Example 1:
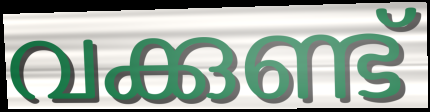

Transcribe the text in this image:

വക്കുണ്ട്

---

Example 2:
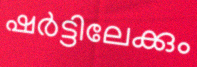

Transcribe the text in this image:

ഷർട്ടിലേക്കും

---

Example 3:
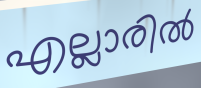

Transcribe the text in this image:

എല്ലാരിൽ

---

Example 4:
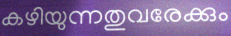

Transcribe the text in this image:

കഴിയുന്നതുവരേക്കും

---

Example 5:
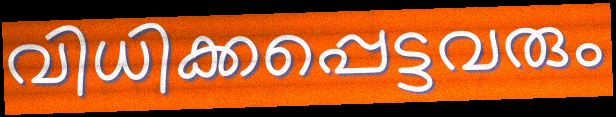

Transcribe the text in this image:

വിധിക്കപ്പെട്ടവരും